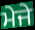
ਮੇਜੇ